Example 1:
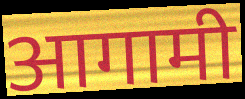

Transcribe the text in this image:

आगामी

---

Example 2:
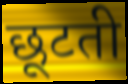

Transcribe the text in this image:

छूटती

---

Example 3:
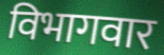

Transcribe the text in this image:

विभागवार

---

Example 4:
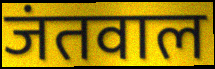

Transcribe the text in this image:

जंतवाल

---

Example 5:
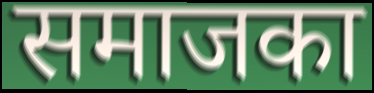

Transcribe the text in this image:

समाजका